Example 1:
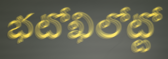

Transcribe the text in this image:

భటోఖిలోట్టో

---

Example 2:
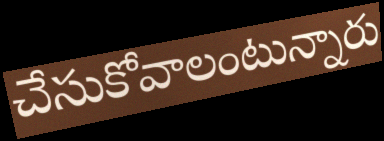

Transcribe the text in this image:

చేసుకోవాలంటున్నారు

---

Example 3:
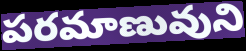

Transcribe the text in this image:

పరమాణువుని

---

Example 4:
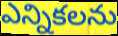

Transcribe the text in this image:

ఎన్నికలను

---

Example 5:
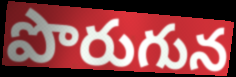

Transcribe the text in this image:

పొరుగున